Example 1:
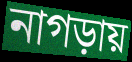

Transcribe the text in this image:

নাগড়ায়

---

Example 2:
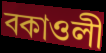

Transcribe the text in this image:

বকাওলী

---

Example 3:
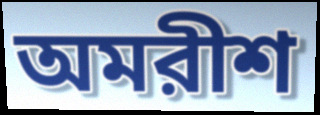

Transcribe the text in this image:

অমরীশ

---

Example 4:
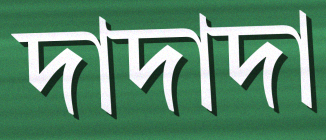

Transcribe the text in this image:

দাদাদা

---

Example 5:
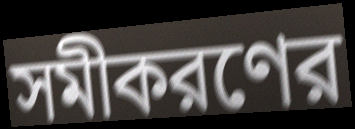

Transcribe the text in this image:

সমীকরণের